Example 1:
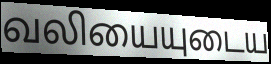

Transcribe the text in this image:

வலியையுடைய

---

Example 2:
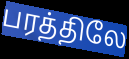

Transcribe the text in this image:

பரத்திலே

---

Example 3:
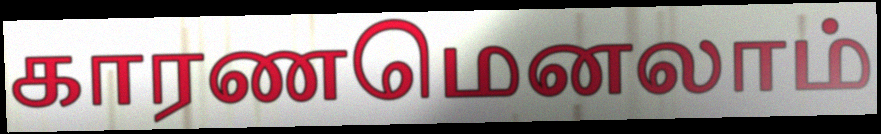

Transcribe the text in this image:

காரணமெனலாம்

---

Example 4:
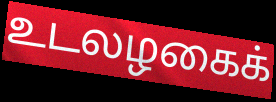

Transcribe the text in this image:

உடலழகைக்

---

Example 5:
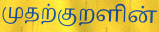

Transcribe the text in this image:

முதற்குறளின்